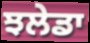
ਝਲੇਡਾ